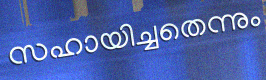
സഹായിച്ചതെന്നും